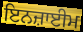
ਇਨਜ਼ਾਈਮ